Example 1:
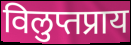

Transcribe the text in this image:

विलुप्तप्राय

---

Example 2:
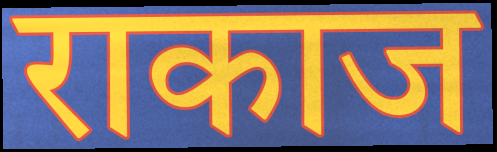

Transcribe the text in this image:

राकाज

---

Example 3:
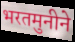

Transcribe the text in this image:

भरतमुनीने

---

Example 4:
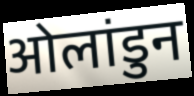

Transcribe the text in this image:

ओलांडुन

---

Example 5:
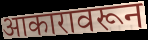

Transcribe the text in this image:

आकारावरून